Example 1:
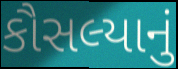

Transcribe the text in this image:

કૌસલ્યાનું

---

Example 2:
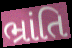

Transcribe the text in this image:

ભ્રાંતિ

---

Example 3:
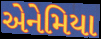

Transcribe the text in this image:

એનેમિયા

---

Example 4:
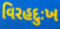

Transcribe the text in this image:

વિરહદુઃખ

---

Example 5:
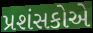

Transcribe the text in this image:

પ્રશંસકોએ